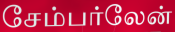
சேம்பர்லேன்